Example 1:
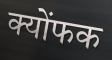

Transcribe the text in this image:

क्योंफक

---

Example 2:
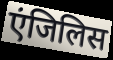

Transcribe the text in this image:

एंजिलिस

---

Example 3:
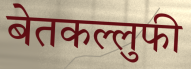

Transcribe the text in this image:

बेतकल्लुफी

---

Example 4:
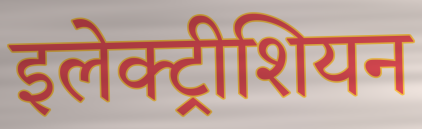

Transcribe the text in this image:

इलेक्ट्रीशियन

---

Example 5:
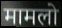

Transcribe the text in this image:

मामलो